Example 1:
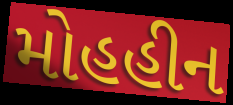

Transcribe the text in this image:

મોહહીન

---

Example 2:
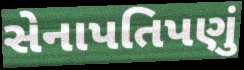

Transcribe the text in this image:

સેનાપતિપણું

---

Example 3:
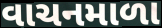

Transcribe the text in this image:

વાચનમાળા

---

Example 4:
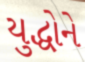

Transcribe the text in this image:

યુદ્ધોને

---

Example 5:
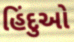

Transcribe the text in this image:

હિંદુઓ